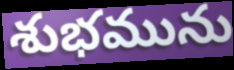
శుభమును